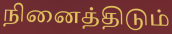
நினைத்திடும்